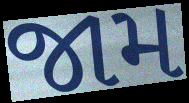
જામ